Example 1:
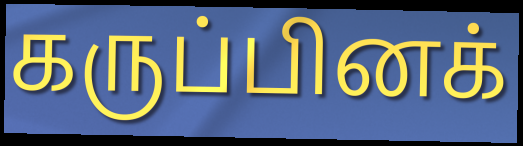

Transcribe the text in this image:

கருப்பினக்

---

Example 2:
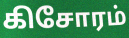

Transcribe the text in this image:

கிசோரம்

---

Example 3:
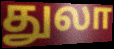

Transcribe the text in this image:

துலா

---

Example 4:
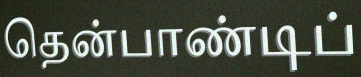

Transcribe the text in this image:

தென்பாண்டிப்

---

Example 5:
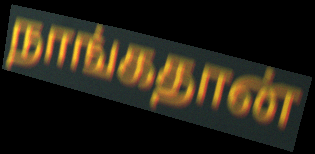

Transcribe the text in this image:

நாங்கதான்